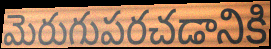
మెరుగుపరచడానికి